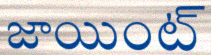
జాయింట్